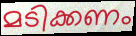
മടിക്കണം